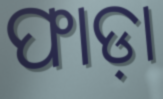
ଫାଡ଼ା